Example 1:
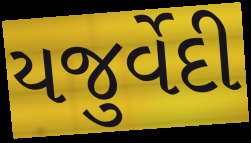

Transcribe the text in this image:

યજુર્વેદી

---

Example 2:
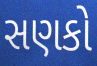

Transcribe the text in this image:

સણકો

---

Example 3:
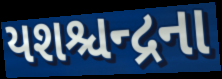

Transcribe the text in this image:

યશશ્ચન્દ્રના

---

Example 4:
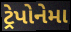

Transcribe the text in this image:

ટ્રેપોનેમા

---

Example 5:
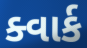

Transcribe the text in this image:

ક્વાર્ક